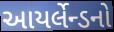
આયર્લેન્ડનો